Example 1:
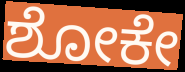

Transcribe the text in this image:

ಶೋಕೇ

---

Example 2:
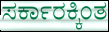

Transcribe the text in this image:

ಸರ್ಕಾರಕ್ಕಿಂತ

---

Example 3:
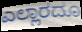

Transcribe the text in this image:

ಎಲ್ಲಾರದೂ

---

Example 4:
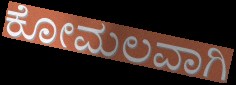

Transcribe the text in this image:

ಕೋಮಲವಾಗಿ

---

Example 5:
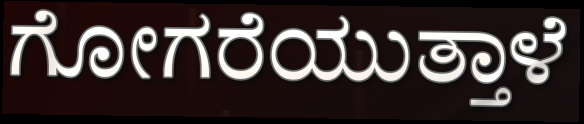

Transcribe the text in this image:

ಗೋಗರೆಯುತ್ತಾಳೆ